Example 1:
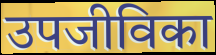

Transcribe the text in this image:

उपजीविका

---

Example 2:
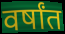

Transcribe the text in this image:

वर्षांत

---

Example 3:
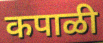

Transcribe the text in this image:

कपाळी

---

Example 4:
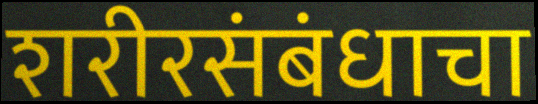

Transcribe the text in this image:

शरीरसंबंधाचा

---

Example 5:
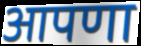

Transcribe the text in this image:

आपणा